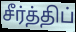
சீர்த்திப்